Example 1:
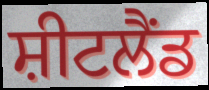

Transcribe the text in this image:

ਸ਼ੀਟਲੈਂਡ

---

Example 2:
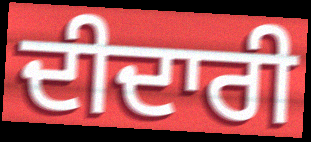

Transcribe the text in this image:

ਦੀਦਾਰੀ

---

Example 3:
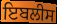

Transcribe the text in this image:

ਇਬਲੀਸ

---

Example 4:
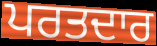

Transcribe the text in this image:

ਪਰਤਦਾਰ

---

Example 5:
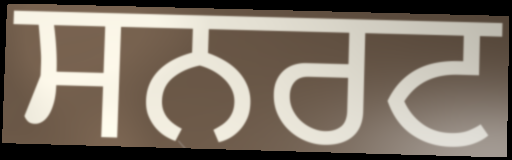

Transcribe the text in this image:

ਸਨਰਟ